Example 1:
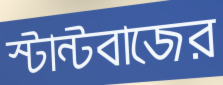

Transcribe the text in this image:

স্টান্টবাজের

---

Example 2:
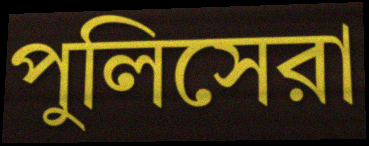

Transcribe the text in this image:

পুলিসেরা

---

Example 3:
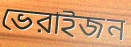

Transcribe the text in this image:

ভেরাইজন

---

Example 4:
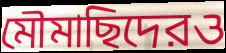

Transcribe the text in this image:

মৌমাছিদেরও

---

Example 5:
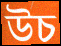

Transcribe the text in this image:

উচ